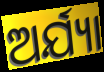
ଅର୍ଯ୍ୟା